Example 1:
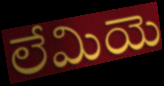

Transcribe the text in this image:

లేమియె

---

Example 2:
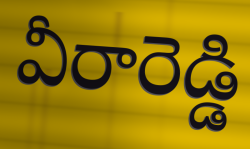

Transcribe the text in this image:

వీరారెడ్డి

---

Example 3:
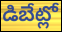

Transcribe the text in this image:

డిబేట్లో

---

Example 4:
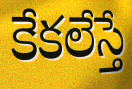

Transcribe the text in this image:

కేకలేస్తే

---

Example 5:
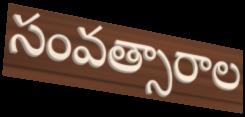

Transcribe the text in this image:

సంవత్సారాల